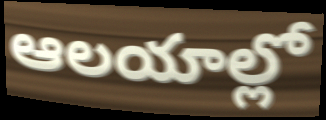
ఆలయాల్లో